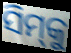
ସିମ୍‌କୁ